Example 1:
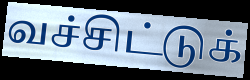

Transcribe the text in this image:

வச்சிட்டுக்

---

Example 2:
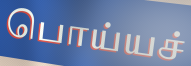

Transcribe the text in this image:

பொய்யச்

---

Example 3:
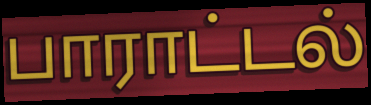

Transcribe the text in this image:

பாராட்டல்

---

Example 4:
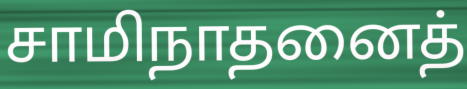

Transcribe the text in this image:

சாமிநாதனைத்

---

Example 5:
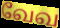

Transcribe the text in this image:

வேவ